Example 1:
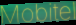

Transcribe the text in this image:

Mobitel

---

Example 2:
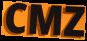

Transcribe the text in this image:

CMZ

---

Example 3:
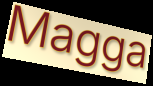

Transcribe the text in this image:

Magga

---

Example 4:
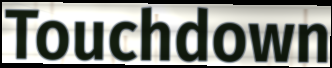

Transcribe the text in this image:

Touchdown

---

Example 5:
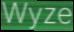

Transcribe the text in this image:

Wyze